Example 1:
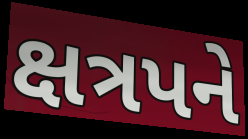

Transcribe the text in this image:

ક્ષત્રપને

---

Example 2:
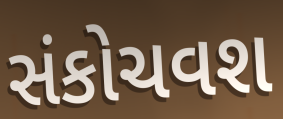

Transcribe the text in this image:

સંકોચવશ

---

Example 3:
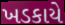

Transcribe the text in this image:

ખડકાયે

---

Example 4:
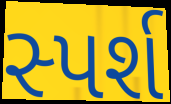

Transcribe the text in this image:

સ્પર્શ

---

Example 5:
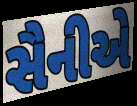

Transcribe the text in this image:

સૈનીએ